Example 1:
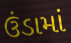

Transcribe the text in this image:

ઉંડામાં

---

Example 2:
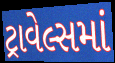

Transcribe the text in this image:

ટ્રાવેલ્સમાં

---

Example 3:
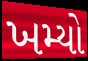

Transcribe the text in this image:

ખમ્યો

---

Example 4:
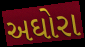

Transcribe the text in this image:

અઘોરા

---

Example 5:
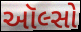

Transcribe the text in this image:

ઑલ્સો